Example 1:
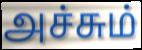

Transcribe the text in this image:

அச்சும்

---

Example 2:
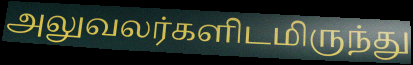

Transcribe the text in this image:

அலுவலர்களிடமிருந்து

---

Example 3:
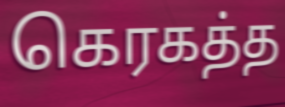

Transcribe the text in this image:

கெரகத்த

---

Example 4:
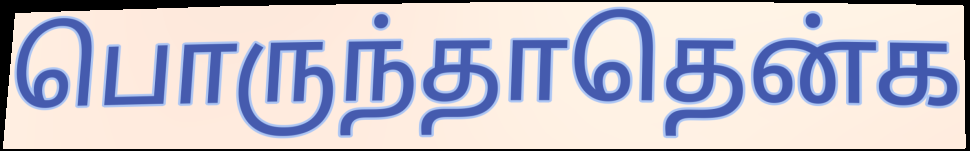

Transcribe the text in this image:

பொருந்தாதென்க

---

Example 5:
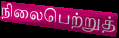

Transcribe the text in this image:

நிலைபெற்றுத்